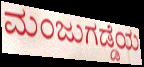
ಮಂಜುಗಡ್ಡೆಯ